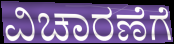
ವಿಚಾರಣೆಗೆ